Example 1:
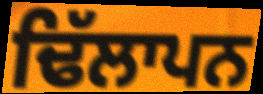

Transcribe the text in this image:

ਢਿੱਲਾਪਨ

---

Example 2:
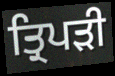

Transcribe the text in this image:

ਤ੍ਰਿਪਡ਼ੀ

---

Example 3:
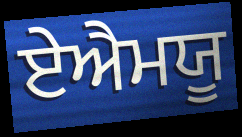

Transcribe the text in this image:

ਏਐਮਯੂ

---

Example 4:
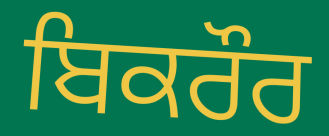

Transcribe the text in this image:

ਬਿਕਰੌਰ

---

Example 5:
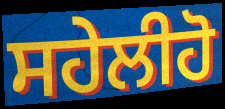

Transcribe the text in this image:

ਸਹੇਲੀਹੋ